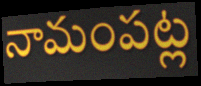
నామంపట్ల